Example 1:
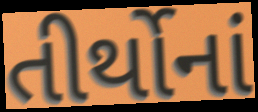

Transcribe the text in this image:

તીર્થોનાં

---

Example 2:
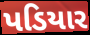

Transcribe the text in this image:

પડિયાર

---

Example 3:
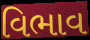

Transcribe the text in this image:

વિભાવ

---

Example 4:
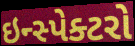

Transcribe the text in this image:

ઇન્સ્પેક્ટરો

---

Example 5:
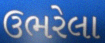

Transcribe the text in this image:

ઉભરેલા